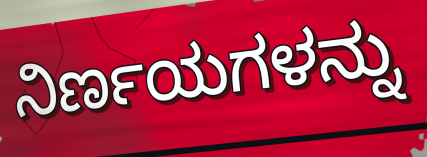
ನಿರ್ಣಯಗಳನ್ನು